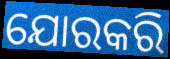
ଯୋରକରି